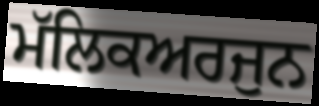
ਮੱਲਿਕਅਰਜੁਨ